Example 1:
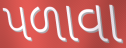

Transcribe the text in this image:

પળાવા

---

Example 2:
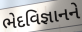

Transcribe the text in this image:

ભેદવિજ્ઞાનને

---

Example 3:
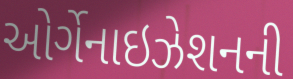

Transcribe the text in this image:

ઓર્ગેનાઇઝેશનની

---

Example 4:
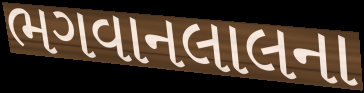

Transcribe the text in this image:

ભગવાનલાલના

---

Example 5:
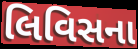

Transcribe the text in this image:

લિવિસના